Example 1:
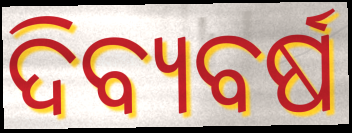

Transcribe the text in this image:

ଦିବ୍ୟବର୍ଷ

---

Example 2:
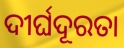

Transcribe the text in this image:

ଦୀର୍ଘଦୂରତା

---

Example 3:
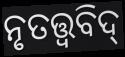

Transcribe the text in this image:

ନୃତତ୍ତ୍ଵବିଦ୍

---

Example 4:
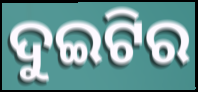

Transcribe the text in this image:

ଦୁଇଟିର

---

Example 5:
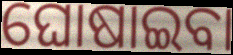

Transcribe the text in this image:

ଘୋଷାଇବା